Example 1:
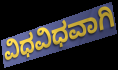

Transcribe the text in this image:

ವಿಧವಿಧವಾಗಿ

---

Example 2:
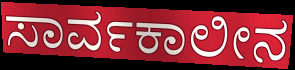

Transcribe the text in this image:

ಸಾರ್ವಕಾಲೀನ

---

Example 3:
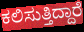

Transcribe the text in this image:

ಕಲಿಸುತ್ತಿದ್ದಾರೆ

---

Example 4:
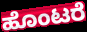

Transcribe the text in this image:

ಹೊಂಟರೆ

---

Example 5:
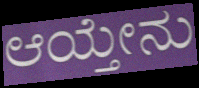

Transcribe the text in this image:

ಆಯ್ತೇನು